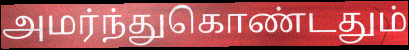
அமர்ந்துகொண்டதும்